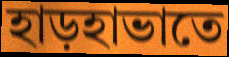
হাড়হাভাতে